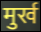
मुर्ख